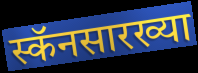
स्कॅनसारख्या